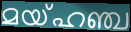
മയ്ഹഞ്ച